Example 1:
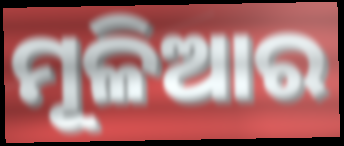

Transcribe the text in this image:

ମୂଳିଆର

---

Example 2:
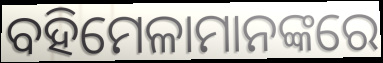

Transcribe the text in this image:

ବହିମେଳାମାନଙ୍କରେ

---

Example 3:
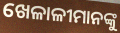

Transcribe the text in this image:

ଖେଳାଳୀମାନଙ୍କୁ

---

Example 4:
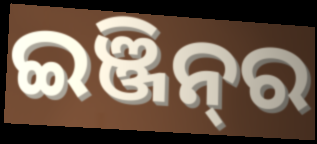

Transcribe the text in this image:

ଇଞ୍ଜିନ୍‍ର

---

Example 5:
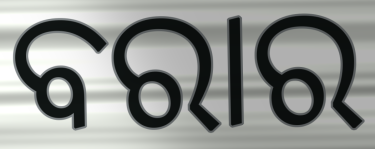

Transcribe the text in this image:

ବରାର